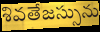
శివతేజస్సును